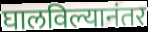
घालविल्यानंतर